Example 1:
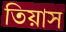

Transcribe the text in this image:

তিয়াস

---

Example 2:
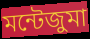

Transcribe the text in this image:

মন্টেজুমা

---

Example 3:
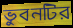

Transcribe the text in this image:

ভুবনটির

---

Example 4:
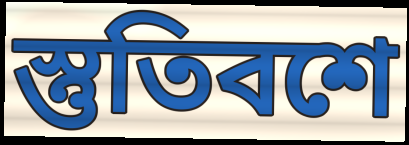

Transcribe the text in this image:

স্তুতিবশে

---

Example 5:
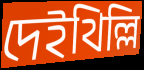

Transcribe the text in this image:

দেইথিল্লি